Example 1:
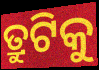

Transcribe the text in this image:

ତ୍ରୁଟିକୁ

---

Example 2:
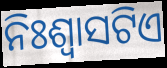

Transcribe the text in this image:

ନିଃଶ୍ୱାସଟିଏ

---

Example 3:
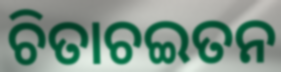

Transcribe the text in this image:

ଚିତାଚଇତନ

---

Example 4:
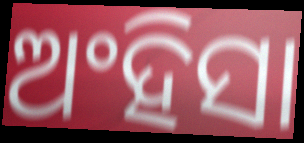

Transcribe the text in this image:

ଅଂହିସା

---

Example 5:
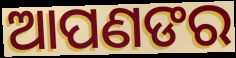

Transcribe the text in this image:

ଆପଣଙର